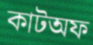
কাটঅফ